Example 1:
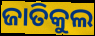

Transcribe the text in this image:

ଜାତିକୁଲ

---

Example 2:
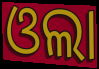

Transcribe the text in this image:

ଓଲା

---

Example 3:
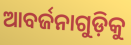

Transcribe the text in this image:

ଆବର୍ଜନାଗୁଡ଼ିକୁ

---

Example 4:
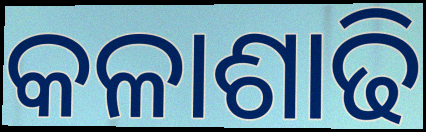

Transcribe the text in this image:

କଳାଶାଢି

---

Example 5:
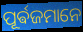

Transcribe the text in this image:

ପୂର୍ଵଜମାନେ